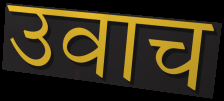
उवाच